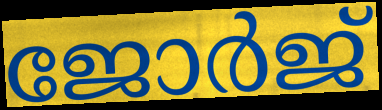
ജോർജ്